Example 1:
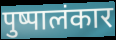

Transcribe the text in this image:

पुष्पालंकार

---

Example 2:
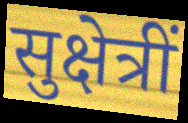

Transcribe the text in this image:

सुक्षेत्रीं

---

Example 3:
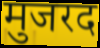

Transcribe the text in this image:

मुजरद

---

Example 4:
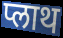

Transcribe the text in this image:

प्लाथ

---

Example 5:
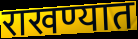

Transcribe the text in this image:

राखण्यात